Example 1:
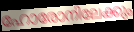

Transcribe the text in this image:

ഹോരോനിലേക്കും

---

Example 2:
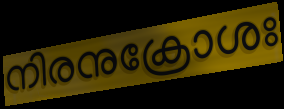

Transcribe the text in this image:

നിരനുക്രോശഃ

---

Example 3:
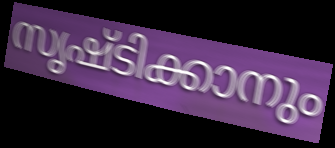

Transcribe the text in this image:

സൃഷ്ടിക്കാനും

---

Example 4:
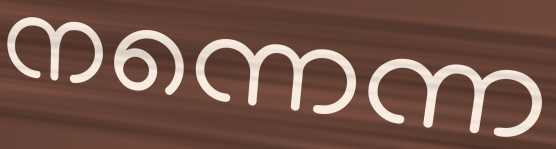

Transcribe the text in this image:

നന്നെന്ന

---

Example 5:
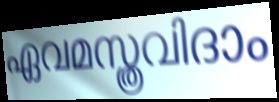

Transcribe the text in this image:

ഏവമസ്ത്രവിദാം